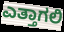
ಎತ್ತಾಗಲಿ